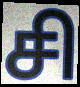
சி